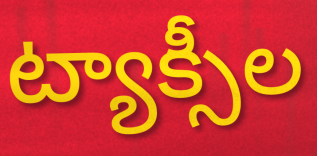
ట్యాక్సీల